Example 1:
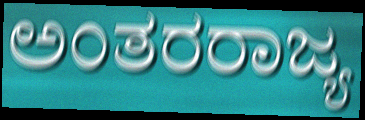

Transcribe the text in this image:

ಅಂತರರಾಜ್ಯ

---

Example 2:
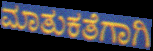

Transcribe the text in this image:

ಮಾತುಕತೆಗಾಗಿ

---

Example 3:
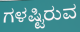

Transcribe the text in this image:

ಗಳಷ್ಟಿರುವ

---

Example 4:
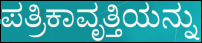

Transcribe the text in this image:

ಪತ್ರಿಕಾವೃತ್ತಿಯನ್ನು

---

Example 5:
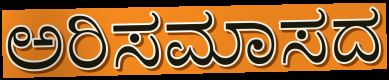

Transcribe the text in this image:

ಅರಿಸಮಾಸದ